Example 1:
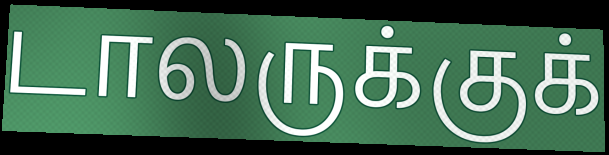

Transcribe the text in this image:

டாலருக்குக்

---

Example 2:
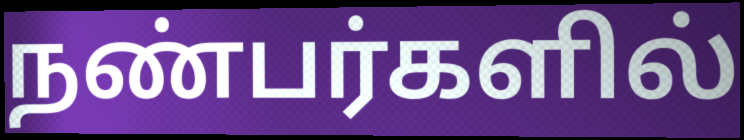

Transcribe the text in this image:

நண்பர்களில்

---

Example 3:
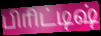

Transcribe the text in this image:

பிரிட்டிஷ்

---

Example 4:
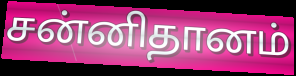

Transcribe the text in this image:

சன்னிதானம்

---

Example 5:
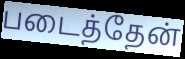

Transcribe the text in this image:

படைத்தேன்